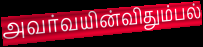
அவர்வயின்விதும்பல்